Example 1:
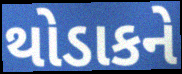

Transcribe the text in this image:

થોડાકને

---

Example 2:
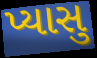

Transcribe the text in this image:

પ્યાસુ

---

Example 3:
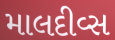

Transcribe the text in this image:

માલદીવ્સ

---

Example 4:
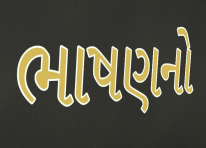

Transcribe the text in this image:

ભાષણનો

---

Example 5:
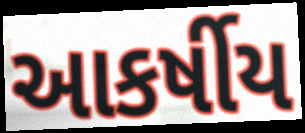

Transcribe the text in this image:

આકર્ષીય